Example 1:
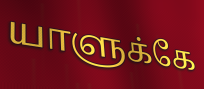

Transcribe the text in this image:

யாளுக்கே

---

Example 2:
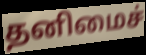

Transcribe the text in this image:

தனிமைச்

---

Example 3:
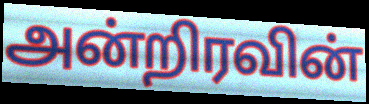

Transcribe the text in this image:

அன்றிரவின்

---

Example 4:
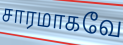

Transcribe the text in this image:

சாரமாகவே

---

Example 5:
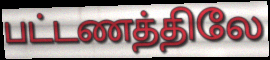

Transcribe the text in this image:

பட்டணத்திலே